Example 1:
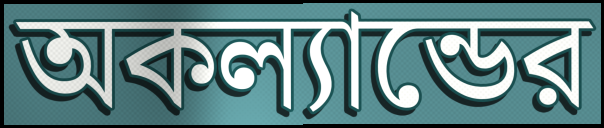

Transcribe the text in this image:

অকল্যান্ডের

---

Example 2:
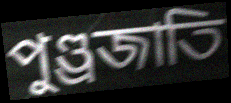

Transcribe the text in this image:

পুণ্ড্রজাতি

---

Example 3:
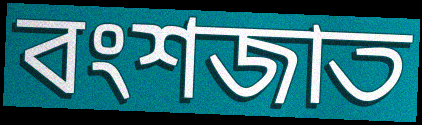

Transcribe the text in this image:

বংশজাত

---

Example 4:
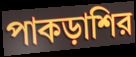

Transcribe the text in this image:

পাকড়াশির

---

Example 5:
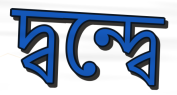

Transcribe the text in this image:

দ্বন্দ্বে